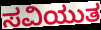
ಸವಿಯುತ